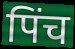
पिंच